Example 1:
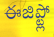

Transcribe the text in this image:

ఈజిప్ట్లో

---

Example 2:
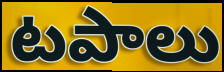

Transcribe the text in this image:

టపాలు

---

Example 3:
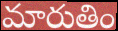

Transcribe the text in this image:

మారుతిం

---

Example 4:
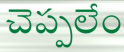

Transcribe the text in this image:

చెప్పలేం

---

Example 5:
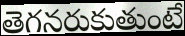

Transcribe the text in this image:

తెగనరుకుతుంటే